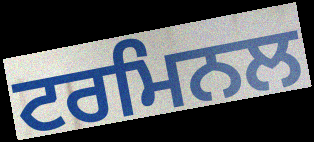
ਟਰਮਿਨਲ